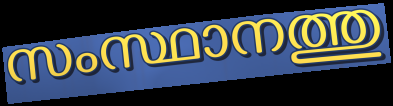
സംസ്ഥാനത്തു